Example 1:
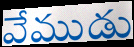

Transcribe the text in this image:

వేముడు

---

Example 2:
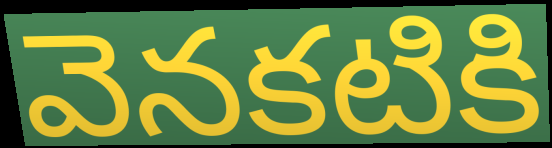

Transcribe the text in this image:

వెనకటికి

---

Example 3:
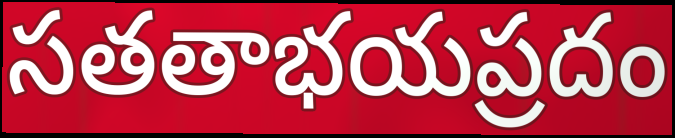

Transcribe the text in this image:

సతతాభయప్రదం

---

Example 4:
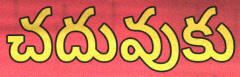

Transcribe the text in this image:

చదువుకు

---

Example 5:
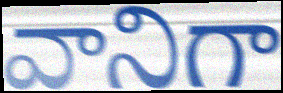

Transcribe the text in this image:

వానిగా